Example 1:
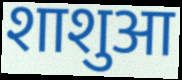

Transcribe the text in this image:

शाशुआ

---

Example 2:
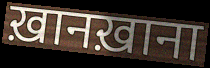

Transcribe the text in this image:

ख़ानख़ाना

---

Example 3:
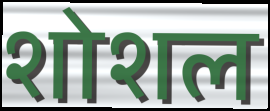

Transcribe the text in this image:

शोशल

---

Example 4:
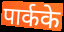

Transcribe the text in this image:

पार्कके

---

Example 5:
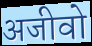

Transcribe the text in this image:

अजीवो